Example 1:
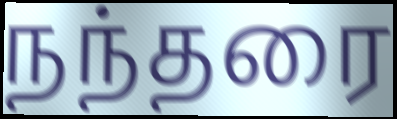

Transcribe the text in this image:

நந்தரை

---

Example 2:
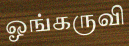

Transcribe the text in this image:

ஓங்கருவி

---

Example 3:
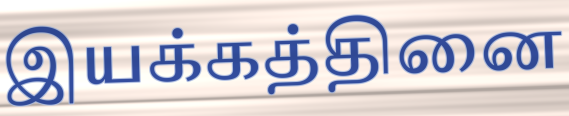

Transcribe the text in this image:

இயக்கத்தினை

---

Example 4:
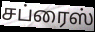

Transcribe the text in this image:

சப்ரைஸ்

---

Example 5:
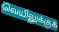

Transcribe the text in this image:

வெயிலுக்குக்